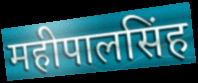
महीपालसिंह